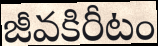
జీవకిరీటం